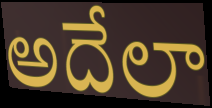
అదేలా